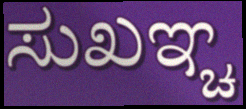
ಸುಖಞ್ಚ